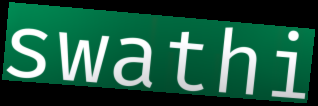
swathi